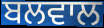
ਬਲਵਾਲ